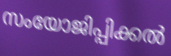
സംയോജിപ്പിക്കൽ